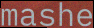
mashe